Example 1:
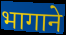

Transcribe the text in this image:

भागाने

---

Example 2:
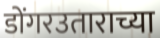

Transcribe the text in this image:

डोंगरउताराच्या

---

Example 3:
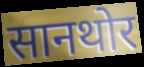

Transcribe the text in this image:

सानथोर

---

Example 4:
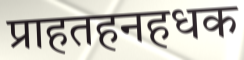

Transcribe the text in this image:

प्राहतहनहधक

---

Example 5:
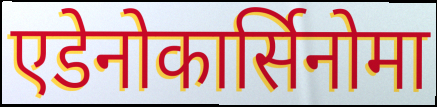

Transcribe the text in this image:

एडेनोकार्सिनोमा